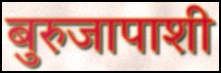
बुरुजापाशी